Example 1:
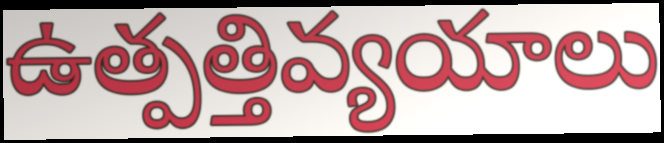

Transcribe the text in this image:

ఉత్పత్తివ్యయాలు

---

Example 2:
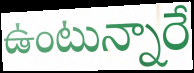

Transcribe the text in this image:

ఉంటున్నారే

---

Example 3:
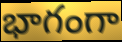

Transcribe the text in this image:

భాగంగా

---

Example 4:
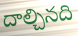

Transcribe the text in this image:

దాల్చినది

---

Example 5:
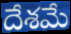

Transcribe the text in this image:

దేశమే